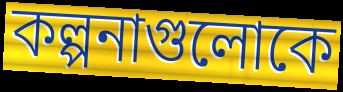
কল্পনাগুলোকে